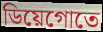
ডিয়েগোতে